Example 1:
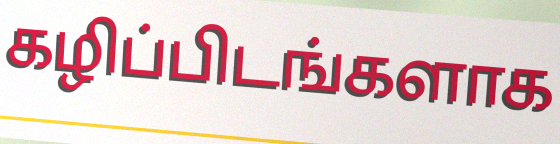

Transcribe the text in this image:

கழிப்பிடங்களாக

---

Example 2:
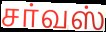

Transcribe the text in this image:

சர்வஸ்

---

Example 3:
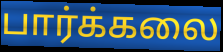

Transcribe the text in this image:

பார்க்கலை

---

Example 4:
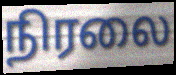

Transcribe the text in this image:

நிரலை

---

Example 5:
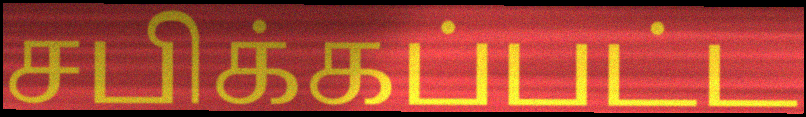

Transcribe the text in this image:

சபிக்கப்பட்ட